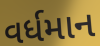
વર્ધમાન